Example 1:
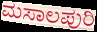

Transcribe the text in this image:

ಮಸಾಲಪುರಿ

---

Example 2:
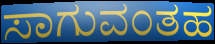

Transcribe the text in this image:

ಸಾಗುವಂತಹ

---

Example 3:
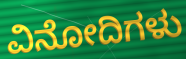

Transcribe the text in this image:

ವಿನೋದಿಗಳು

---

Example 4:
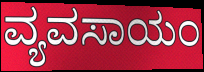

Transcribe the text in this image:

ವ್ಯವಸಾಯಂ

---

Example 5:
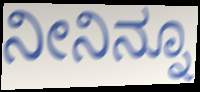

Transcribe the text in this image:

ನೀನಿನ್ನೂ